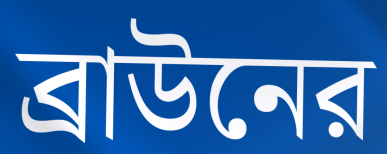
ব্রাউনের